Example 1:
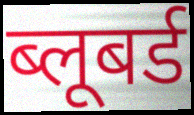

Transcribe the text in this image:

ब्लूबर्ड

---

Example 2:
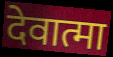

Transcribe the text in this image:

देवात्मा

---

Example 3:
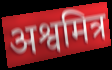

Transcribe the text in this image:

अश्वमित्र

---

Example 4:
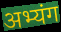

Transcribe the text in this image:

अभ्यंग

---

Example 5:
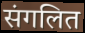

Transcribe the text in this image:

संगलित